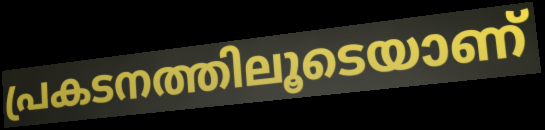
പ്രകടനത്തിലൂടെയാണ്